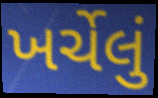
ખર્ચેલું